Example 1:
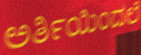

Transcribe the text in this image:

ಅರ್ತಿಯಿಂದಲೆ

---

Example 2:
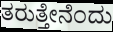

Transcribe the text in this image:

ತರುತ್ತೇನೆಂದು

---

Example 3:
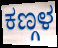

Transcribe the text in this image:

ಕಣ್ಗಳ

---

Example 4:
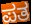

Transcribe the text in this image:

ಪತ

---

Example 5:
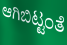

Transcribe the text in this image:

ಆಗಿಬಿಟ್ಟಂತೆ